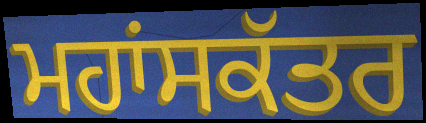
ਮਹਾਂਸਕੱਤਰ